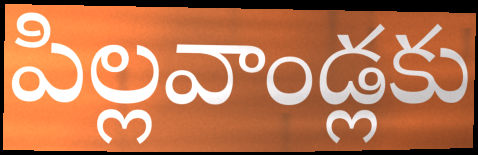
పిల్లవాండ్లకు